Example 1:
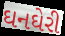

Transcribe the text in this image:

ઘનઘેરી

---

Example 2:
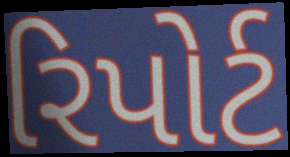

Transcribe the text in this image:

રિપોર્ટ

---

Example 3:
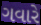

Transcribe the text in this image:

ગવારે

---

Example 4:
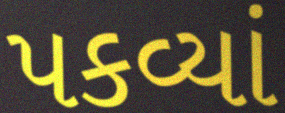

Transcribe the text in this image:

પકવ્યાં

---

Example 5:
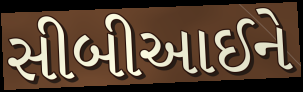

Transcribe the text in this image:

સીબીઆઈને